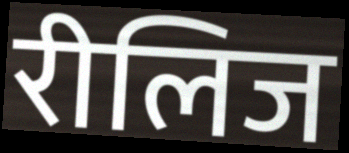
रीलिज